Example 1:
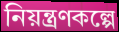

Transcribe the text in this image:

নিয়ন্ত্রণকল্পে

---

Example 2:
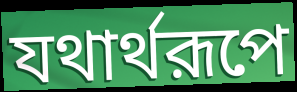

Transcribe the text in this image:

যথার্থরূপে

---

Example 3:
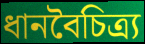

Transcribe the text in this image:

ধানবৈচিত্র্য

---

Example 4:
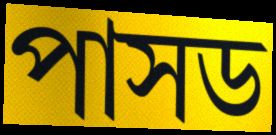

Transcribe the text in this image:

পাসড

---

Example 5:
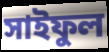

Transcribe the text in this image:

সাইফুল